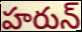
హరున్